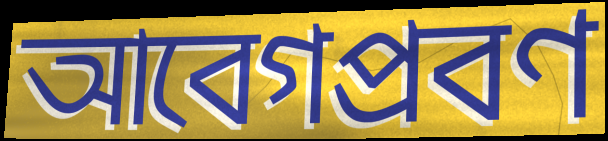
আবেগপ্রবণ